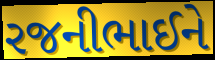
રજનીભાઈને